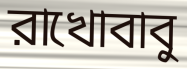
রাখোবাবু